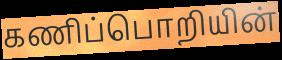
கணிப்பொறியின்